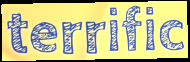
terrific